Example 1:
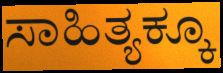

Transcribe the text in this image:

ಸಾಹಿತ್ಯಕ್ಕೂ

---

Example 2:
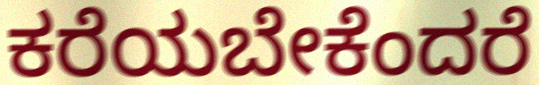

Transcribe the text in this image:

ಕರೆಯಬೇಕೆಂದರೆ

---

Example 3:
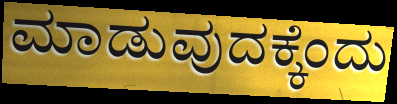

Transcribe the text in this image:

ಮಾಡುವುದಕ್ಕೆಂದು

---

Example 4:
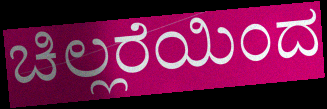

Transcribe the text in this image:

ಚಿಲ್ಲರೆಯಿಂದ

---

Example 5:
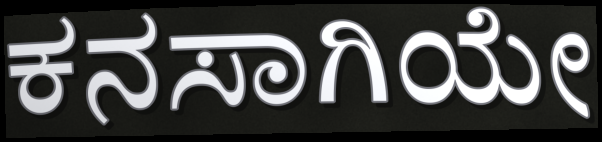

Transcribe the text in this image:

ಕನಸಾಗಿಯೇ